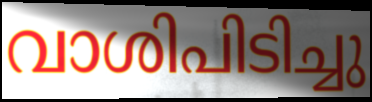
വാശിപിടിച്ചു